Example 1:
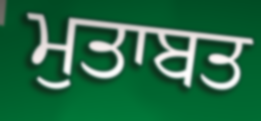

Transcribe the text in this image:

ਮੁਤਾਬਤ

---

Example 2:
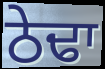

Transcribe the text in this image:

ਠੇਢਾ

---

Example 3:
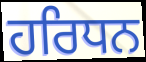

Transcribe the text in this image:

ਹਰਿਧਨ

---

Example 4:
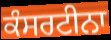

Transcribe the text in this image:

ਕੰਸਰਟੀਨਾ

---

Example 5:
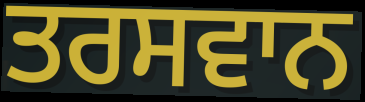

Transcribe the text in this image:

ਤਰਸਵਾਨ